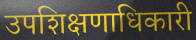
उपशिक्षणाधिकारी